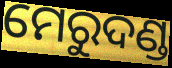
ମେରୁଦଣ୍ଡ